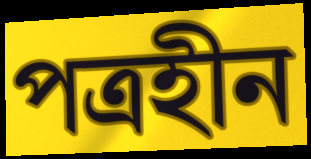
পত্রহীন